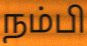
நம்பி